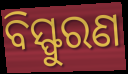
ବିସ୍ଫୁରଣ